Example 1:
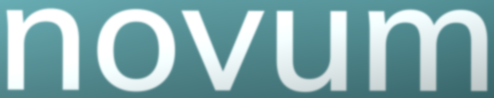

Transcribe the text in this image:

novum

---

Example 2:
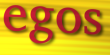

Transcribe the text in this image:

egos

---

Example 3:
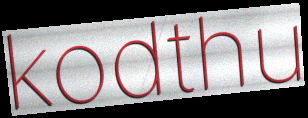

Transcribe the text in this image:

kodthu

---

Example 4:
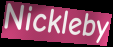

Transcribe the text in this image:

Nickleby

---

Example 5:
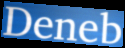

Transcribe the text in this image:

Deneb